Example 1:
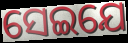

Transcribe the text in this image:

ସେଇଯେ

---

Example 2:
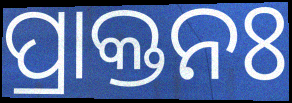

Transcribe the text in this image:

ପ୍ରାକ୍ତନଃ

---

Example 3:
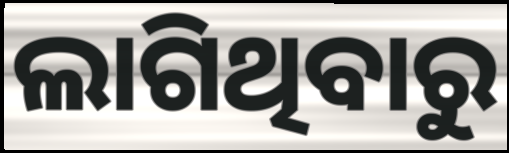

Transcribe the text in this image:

ଲାଗିଥିବାରୁ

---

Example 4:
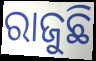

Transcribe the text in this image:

ରାଜୁଛି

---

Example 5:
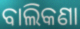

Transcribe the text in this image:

ବାଲିକଣା